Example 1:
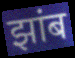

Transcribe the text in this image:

झांब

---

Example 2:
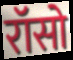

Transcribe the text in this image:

रॉसो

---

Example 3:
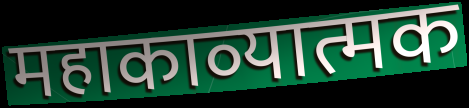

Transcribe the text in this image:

महाकाव्‍यात्‍मक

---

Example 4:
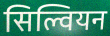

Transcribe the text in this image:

सिल्वियन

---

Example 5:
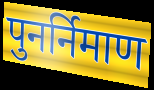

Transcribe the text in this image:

पुनर्निमाण